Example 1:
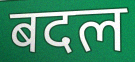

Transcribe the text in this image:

बदल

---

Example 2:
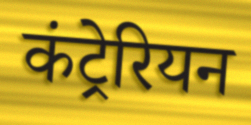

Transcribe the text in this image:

कंट्रेरियन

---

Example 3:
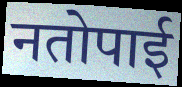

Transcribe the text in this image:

नतोपाई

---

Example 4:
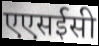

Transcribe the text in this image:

एएसईसी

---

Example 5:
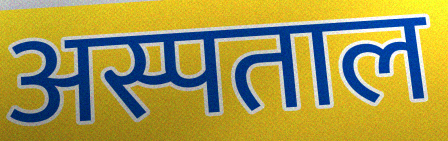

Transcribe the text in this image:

अस्पताल